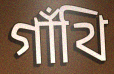
গাঁথি